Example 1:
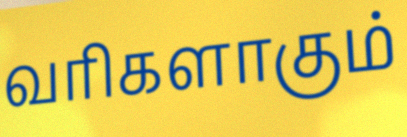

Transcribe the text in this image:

வரிகளாகும்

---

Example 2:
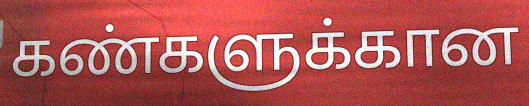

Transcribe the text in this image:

கண்களுக்கான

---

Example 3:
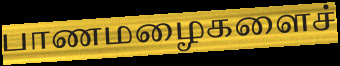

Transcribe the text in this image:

பாணமழைகளைச்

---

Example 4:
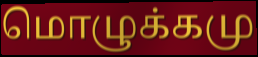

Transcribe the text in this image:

மொழுக்கமு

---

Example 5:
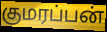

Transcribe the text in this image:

குமரப்பன்